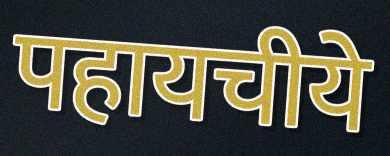
पहायचीये